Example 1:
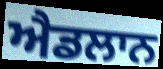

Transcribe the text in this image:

ਐਡਲਾਨ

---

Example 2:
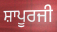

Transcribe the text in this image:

ਸ਼ਾਪੂਰਜੀ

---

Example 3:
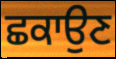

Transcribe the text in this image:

ਛਕਾਉਣ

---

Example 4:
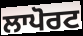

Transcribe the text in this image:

ਲਾਪੋਰਟ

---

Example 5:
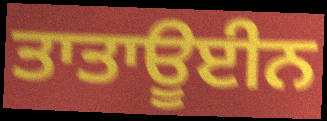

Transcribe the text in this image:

ਤਾਤਾਊਈਨ